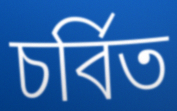
চৰ্বিত